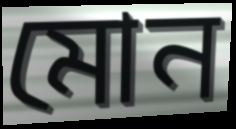
মোন